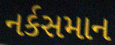
નર્કસમાન